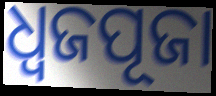
ଧ୍ୱଜପୂଜା